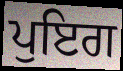
ਪੁਇਗ